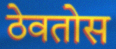
ठेवतोस